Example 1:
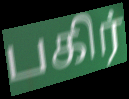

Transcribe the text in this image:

பகிர்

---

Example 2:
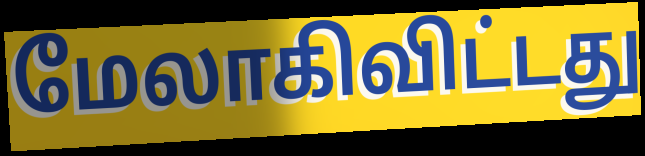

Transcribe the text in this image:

மேலாகிவிட்டது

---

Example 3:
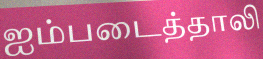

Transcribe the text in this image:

ஐம்படைத்தாலி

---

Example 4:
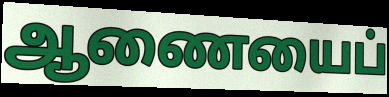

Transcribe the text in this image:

ஆணையைப்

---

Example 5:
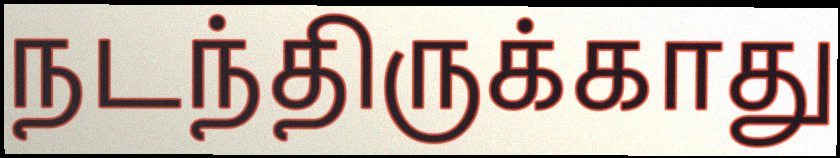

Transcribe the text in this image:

நடந்திருக்காது